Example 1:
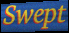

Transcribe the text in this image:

Swept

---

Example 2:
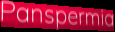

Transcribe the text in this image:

Panspermia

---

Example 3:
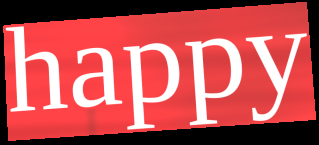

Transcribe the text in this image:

happy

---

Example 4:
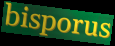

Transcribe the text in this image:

bisporus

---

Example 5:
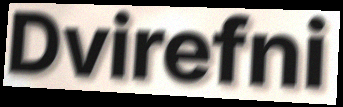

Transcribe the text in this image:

Dvirefni